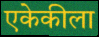
एकेकीला